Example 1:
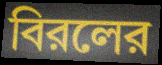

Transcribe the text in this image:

বিরলের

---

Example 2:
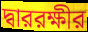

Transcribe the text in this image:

দ্বাররক্ষীর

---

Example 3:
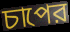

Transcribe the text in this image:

চাপের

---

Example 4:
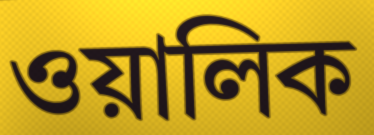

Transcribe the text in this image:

ওয়ালিক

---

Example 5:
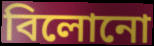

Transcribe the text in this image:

বিলোনো